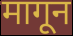
मागून